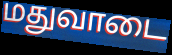
மதுவாடை